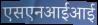
एसएनआईआई